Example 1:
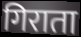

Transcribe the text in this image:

गिराता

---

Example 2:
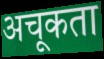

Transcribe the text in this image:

अचूकता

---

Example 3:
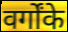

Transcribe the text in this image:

वर्गोंके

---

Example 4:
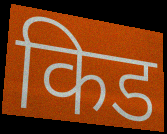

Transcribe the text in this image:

किड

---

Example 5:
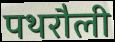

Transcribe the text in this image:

पथरौली